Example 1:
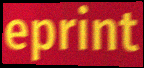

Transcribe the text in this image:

eprint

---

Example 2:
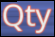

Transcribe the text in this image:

Qty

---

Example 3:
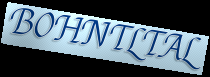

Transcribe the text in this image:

BOHNTLTAL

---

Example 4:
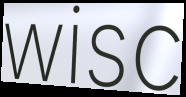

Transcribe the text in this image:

wisc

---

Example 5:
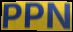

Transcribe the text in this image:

PPN